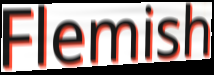
Flemish